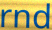
rnd